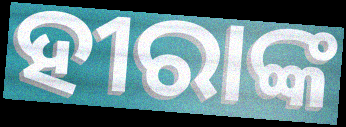
ହୀରାଙ୍କ